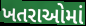
ખતરાઓમાં